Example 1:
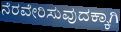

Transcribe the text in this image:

ನೆರವೇರಿಸುವುದಕ್ಕಾಗಿ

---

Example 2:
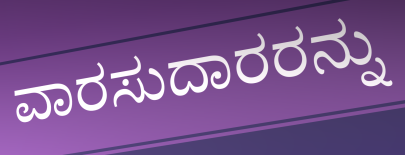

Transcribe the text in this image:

ವಾರಸುದಾರರನ್ನು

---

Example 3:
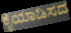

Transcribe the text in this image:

ಕೈಯಾಡಿಸದ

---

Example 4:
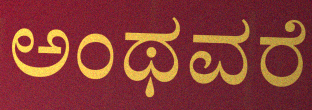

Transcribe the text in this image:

ಅಂಥವರೆ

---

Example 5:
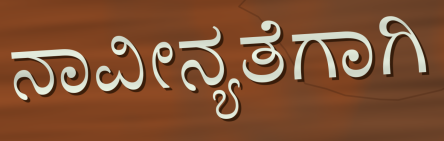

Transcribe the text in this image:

ನಾವೀನ್ಯತೆಗಾಗಿ